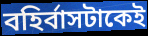
বহির্বাসটাকেই